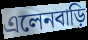
এলেনবাড়ি